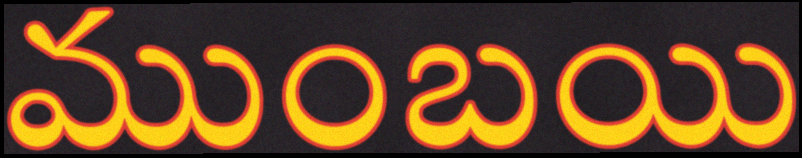
ముంబయి